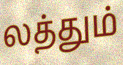
லத்தும்